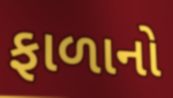
ફાળાનો